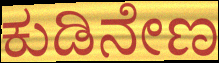
ಕುಡಿನೇಣ